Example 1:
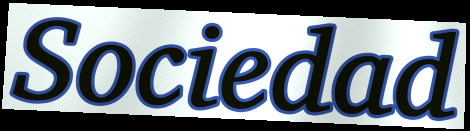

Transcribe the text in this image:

Sociedad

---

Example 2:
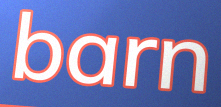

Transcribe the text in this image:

barn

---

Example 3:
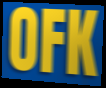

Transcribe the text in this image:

OFK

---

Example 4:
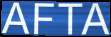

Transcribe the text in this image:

AFTA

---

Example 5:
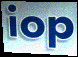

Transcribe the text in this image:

iop